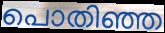
പൊതിഞ്ഞ